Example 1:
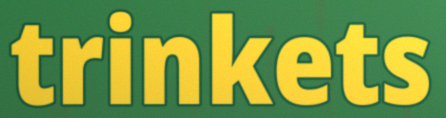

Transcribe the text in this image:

trinkets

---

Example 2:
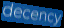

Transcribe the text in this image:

decency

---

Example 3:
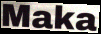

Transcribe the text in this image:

Maka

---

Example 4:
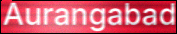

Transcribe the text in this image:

Aurangabad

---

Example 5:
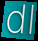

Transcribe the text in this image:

dl